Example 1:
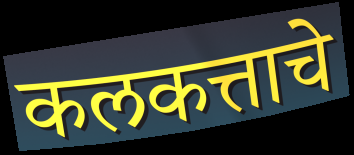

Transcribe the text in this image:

कलकत्ताचे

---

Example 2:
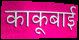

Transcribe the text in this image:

काकूबाई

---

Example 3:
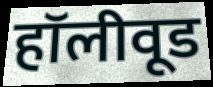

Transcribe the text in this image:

हॉलीवूड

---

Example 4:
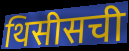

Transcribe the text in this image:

थिसीसची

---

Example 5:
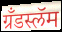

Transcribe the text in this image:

ग्रँडस्लॅम